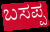
ಬಸಪ್ಪ